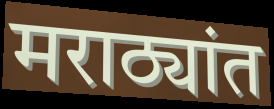
मराठ्यांत